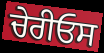
ਚੇਰੀਓਸ